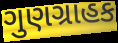
ગુણગ્રાહક